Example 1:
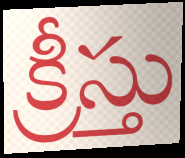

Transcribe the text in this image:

క్రీస్తు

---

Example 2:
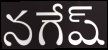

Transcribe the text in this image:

నగేష్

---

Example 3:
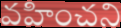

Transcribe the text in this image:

వహించని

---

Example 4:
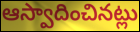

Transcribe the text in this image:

ఆస్వాదించినట్లు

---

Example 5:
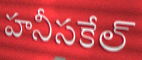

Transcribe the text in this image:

హనీసకేల్